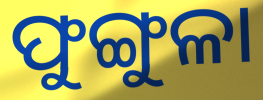
ଫୁଙ୍ଗୁଳା